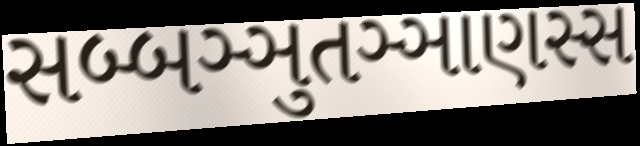
સબ્બઞ્ઞુતઞ્ઞાણસ્સ